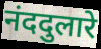
नंददुलारे